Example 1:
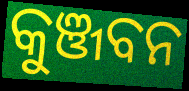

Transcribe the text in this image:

କୁଞ୍ଜବନ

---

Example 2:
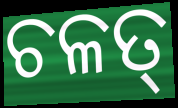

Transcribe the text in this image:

ଚଳତ୍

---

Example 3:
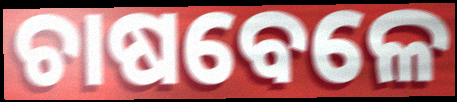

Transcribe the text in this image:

ଚାଷବେଳେ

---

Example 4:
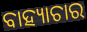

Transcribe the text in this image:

ବାହ୍ୟାଚାର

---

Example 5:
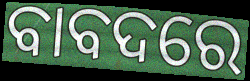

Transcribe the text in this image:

ବାବଦରେ